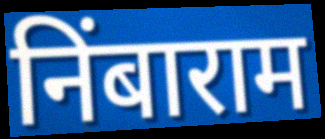
निंबाराम